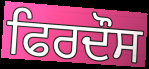
ਫਿਰਦੌਸ